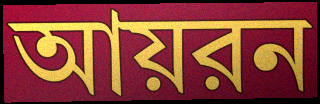
আয়রন